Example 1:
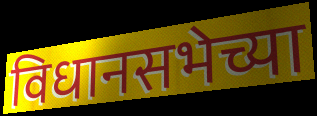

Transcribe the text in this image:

विधानसभेच्या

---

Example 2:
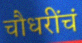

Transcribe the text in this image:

चौधरींचं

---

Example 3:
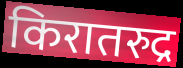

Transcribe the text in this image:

किरातरुद्र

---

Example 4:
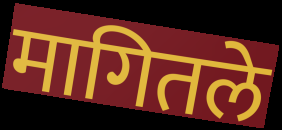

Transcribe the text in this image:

मागितले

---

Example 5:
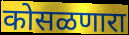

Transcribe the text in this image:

कोसळणारा